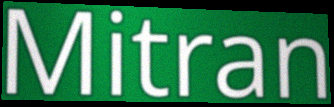
Mitran